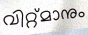
വിറ്റ്മാനും